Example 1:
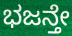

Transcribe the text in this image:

ಭಜನ್ತೇ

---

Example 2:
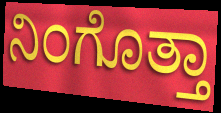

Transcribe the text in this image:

ನಿಂಗೊತ್ತಾ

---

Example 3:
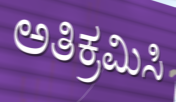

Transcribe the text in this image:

ಅತಿಕ್ರಮಿಸಿ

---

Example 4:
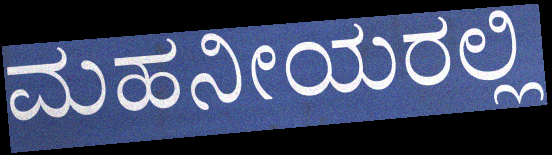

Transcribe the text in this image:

ಮಹನೀಯರಲ್ಲಿ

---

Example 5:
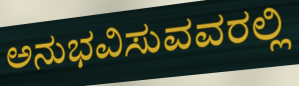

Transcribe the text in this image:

ಅನುಭವಿಸುವವರಲ್ಲಿ